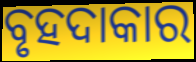
ବୃହଦାକାର